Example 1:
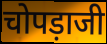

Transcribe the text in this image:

चोपड़ाजी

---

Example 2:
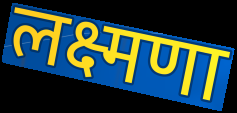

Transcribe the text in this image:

लक्ष्मणा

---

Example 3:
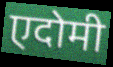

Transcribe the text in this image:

एदोमी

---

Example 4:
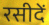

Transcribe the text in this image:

रसीदें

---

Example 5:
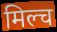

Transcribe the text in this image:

मिल्च